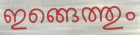
ഇങ്ങെത്തും